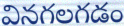
వినగలగడం